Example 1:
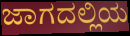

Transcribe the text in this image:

ಜಾಗದಲ್ಲಿಯ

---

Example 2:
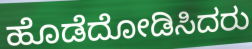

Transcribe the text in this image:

ಹೊಡೆದೋಡಿಸಿದರು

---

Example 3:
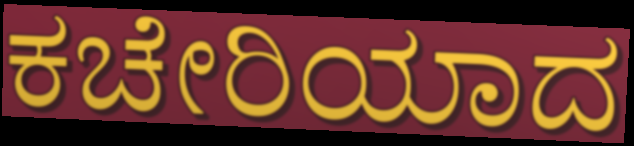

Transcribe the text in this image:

ಕಚೇರಿಯಾದ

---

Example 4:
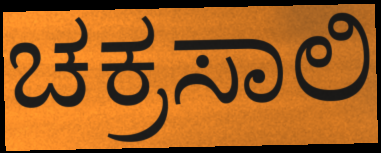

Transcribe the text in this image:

ಚಕ್ರಸಾಲಿ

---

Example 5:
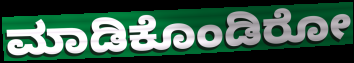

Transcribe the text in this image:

ಮಾಡಿಕೊಂಡಿರೋ